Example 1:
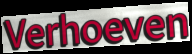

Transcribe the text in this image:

Verhoeven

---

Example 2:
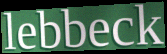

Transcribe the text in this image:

lebbeck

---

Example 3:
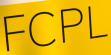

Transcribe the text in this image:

FCPL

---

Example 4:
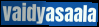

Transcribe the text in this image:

vaidyasaala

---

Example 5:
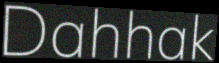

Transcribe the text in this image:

Dahhak